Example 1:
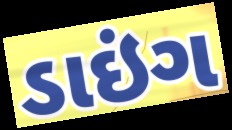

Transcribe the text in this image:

ડાઇંગ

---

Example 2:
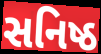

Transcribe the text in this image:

સનિષ્ઠ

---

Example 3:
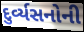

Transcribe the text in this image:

દુર્વ્યસનોની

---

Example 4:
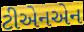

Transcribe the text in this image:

ટીએનએન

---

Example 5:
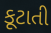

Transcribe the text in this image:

કૂટાતી